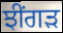
ਝੀਂਗੜ